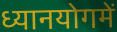
ध्यानयोगमें